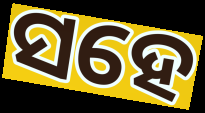
ସହେ